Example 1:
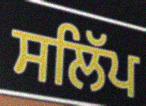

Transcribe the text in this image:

ਸਲਿੱਪ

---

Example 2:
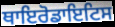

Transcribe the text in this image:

ਥਾਇਰੋਡਾਇਟਿਸ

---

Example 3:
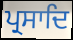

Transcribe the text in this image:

ਪ੍ਰਸਾਦਿ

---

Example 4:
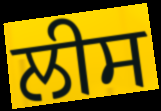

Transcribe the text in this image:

ਲੀਸ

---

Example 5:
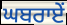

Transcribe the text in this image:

ਘਬਰਾਏਂ